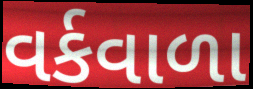
વર્કવાળા